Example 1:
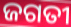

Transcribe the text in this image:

ଜଗତୀ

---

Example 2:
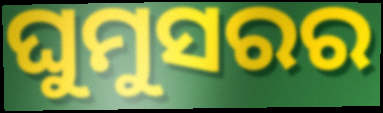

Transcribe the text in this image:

ଘୁମୁସରର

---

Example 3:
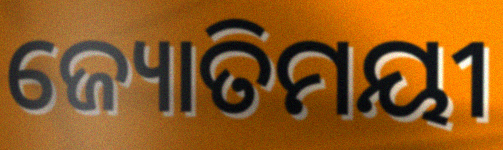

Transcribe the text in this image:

ଜ୍ୟୋତିମୟୀ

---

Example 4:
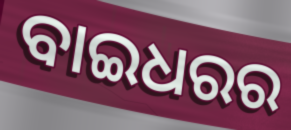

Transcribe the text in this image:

ବାଇଧରର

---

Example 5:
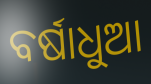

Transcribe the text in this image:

ବର୍ଷାଧୁଆ